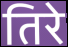
तिरे